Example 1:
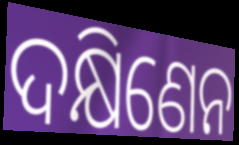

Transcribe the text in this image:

ଦକ୍ଷିଣେନ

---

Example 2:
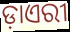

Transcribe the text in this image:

ଡ଼ାଏରୀ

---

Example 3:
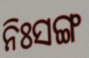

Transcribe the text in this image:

ନିଃସଙ୍ଗ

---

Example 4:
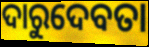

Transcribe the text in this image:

ଦାରୁଦେବତା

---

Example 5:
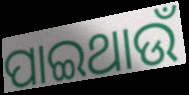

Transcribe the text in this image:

ପାଇଥାଉଁ